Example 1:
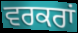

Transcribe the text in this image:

ਵਰਕਰਾਂ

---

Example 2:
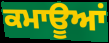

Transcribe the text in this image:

ਕਮਾਊਆਂ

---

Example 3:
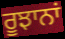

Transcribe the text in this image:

ਰੂਝਾਨਾਂ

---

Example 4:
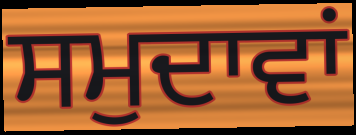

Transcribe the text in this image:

ਸਮੁਦਾਵਾਂ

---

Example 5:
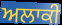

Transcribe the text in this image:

ਅਲਾਕੀ